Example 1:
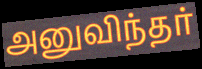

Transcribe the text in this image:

அனுவிந்தர்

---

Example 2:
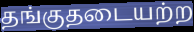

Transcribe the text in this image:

தங்குதடையற்ற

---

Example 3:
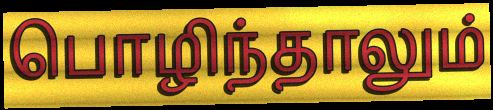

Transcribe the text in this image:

பொழிந்தாலும்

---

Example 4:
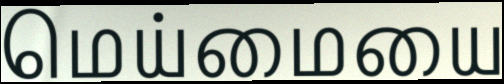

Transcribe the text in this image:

மெய்மையை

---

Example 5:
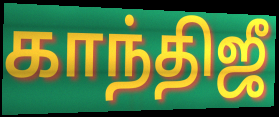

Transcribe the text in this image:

காந்திஜீ